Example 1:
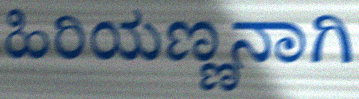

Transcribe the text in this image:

ಹಿರಿಯಣ್ಣನಾಗಿ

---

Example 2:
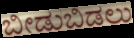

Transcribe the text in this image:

ಬೀಡುಬಿಡಲು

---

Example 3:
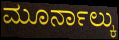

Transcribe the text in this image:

ಮೂರ್ನಾಲ್ಕು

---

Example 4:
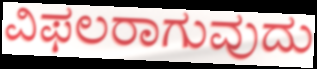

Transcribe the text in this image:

ವಿಫಲರಾಗುವುದು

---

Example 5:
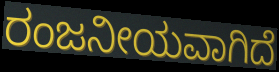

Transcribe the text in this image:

ರಂಜನೀಯವಾಗಿದೆ